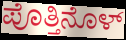
ಪೊತ್ತಿನೊಳ್